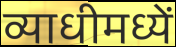
व्याधीमध्यें